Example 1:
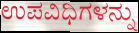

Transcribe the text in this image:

ಉಪವಿಧಿಗಳನ್ನು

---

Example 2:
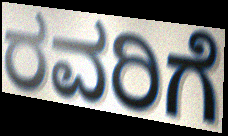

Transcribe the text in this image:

ರವರಿಗೆ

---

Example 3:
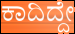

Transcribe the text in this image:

ಕಾದಿದ್ದೇ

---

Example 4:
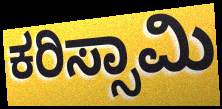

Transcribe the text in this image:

ಕರಿಸ್ಸಾಮಿ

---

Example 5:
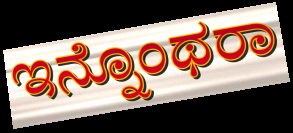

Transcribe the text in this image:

ಇನ್ನೊಂಥರಾ